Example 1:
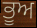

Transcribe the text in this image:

ਭੂਅ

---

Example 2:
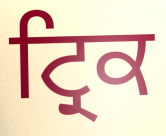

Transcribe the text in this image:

ਟ੍ਰਿਕ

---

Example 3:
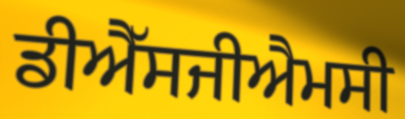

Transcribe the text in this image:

ਡੀਐੱਸਜੀਐਮਸੀ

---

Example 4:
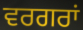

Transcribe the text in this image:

ਵਰਗਰਾਂ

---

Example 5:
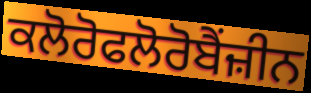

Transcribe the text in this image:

ਕਲੋਰੋਫਲੋਰੋਬੈਂਜ਼ੀਨ